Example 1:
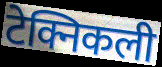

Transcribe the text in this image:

टेक्निकली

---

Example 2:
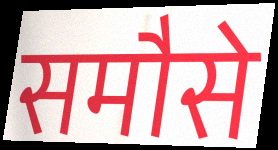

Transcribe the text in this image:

समौसे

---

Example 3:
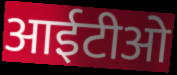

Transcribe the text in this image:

आईटीओ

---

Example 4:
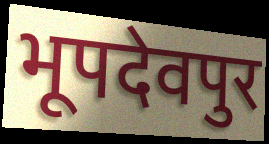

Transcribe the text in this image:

भूपदेवपुर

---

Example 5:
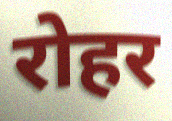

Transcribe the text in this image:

रोहर